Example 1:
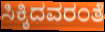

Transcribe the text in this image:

ಸಿಕ್ಕಿದವರಂತೆ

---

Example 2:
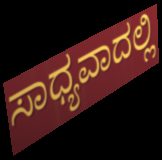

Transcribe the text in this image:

ಸಾಧ್ಯವಾದಲ್ಲಿ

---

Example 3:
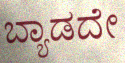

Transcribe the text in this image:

ಬ್ಯಾಡದೇ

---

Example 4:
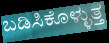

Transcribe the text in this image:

ಬಡಿಸಿಕೊಳ್ಳುತ್ತ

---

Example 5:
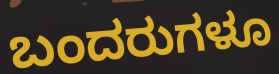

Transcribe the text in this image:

ಬಂದರುಗಳೂ